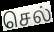
செல்